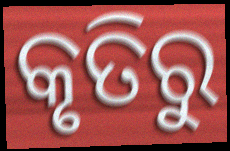
କୃତିରୁ